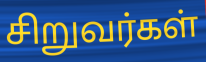
சிறுவர்கள்